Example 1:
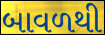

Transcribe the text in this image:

બાવળથી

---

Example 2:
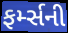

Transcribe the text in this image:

ફર્મ્સની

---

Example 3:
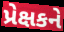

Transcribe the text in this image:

પ્રેક્ષકને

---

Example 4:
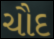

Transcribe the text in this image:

ચૌદ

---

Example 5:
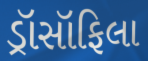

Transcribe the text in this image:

ડ્રૉસૉફિલા